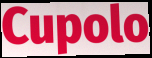
Cupolo